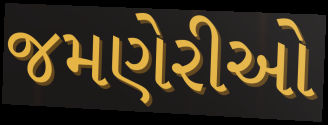
જમણેરીઓ